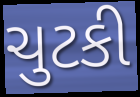
ચુટકી